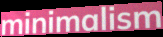
minimalism